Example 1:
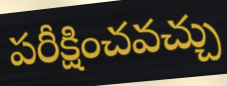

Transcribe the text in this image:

పరీక్షించవచ్చు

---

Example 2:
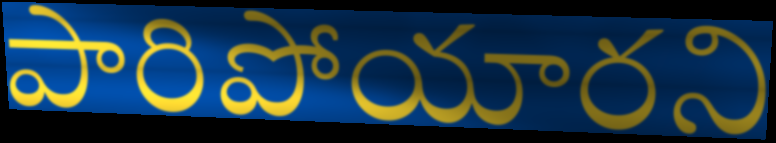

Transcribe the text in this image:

పారిపోయారని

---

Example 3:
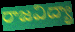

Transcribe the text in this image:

రాజవిద్యా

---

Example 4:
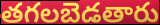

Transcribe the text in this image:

తగలబెడతారు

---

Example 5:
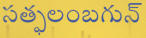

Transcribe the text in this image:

సత్ఫలంబగున్